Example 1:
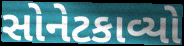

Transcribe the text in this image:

સોનેટકાવ્યો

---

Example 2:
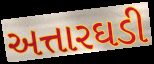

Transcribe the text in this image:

અત્તારઘડી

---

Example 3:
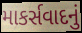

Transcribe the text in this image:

માકર્સવાદનું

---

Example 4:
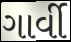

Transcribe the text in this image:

ગાર્વી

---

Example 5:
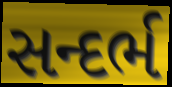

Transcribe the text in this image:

સન્દર્ભ